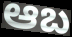
ఆబ